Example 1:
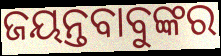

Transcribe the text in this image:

ଜୟନ୍ତବାବୁଙ୍କର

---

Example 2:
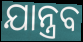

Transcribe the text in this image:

ଯାନ୍ତ୍ରବ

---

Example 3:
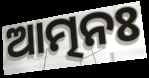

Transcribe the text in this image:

ଆତ୍ମନଃ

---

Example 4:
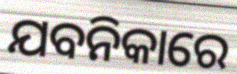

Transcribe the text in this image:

ଯବନିକାରେ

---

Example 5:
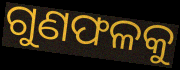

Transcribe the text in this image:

ଗୁଣଫଳକୁ